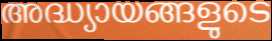
അദ്ധ്യായങ്ങളുടെ